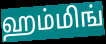
ஹம்மிங்